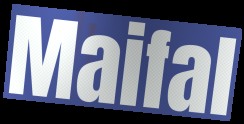
Maifal